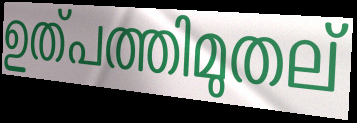
ഉത്പത്തിമുതല്